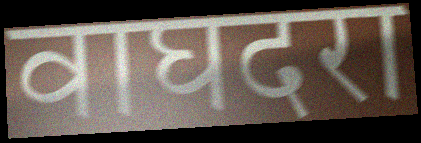
वाघदरा